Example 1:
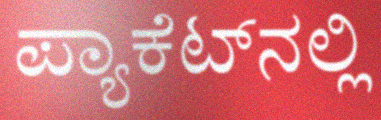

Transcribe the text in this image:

ಪ್ಯಾಕೆಟ್‌ನಲ್ಲಿ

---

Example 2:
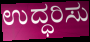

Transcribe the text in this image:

ಉದ್ಧರಿಸು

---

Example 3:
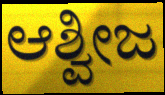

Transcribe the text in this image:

ಆಶ್ವೀಜ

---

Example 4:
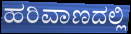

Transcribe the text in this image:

ಹರಿವಾಣದಲ್ಲಿ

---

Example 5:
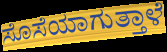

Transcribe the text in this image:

ಸೊಸೆಯಾಗುತ್ತಾಳೆ